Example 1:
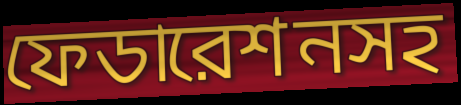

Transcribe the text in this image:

ফেডারেশনসহ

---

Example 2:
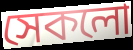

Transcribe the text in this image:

সেকলো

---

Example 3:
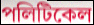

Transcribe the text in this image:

পলিটিকেল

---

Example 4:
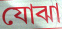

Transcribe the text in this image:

যোঝা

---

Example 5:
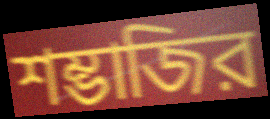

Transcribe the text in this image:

শম্ভাজির